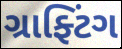
ગ્રાફ્ટિંગ